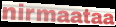
nirmaataa